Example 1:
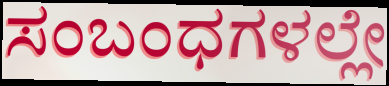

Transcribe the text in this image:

ಸಂಬಂಧಗಳಲ್ಲೇ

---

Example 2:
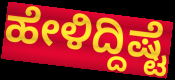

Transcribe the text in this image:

ಹೇಳಿದ್ದಿಷ್ಟೆ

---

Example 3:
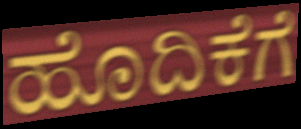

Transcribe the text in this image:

ಹೊದಿಕೆಗೆ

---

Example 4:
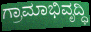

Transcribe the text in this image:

ಗ್ರಾಮಾಭಿವೃದ್ಧಿ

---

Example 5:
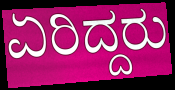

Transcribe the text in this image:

ಏರಿದ್ದರು